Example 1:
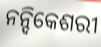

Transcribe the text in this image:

ନନ୍ଦିକେଶରୀ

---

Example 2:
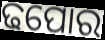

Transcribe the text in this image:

ଢପୋର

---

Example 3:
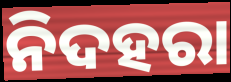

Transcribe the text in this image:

ନିଦହରା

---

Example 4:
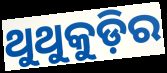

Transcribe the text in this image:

ଥୁଥୁକୁଡ଼ିର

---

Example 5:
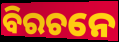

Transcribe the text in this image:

ବିରଚନେ